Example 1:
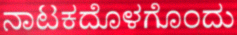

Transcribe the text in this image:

ನಾಟಕದೊಳಗೊಂದು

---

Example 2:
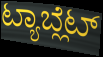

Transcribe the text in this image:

ಟ್ಯಾಬ್ಲೆಟ್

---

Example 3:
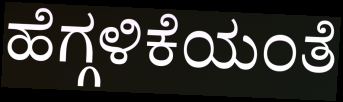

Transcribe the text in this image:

ಹೆಗ್ಗಳಿಕೆಯಂತೆ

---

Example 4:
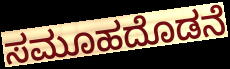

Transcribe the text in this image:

ಸಮೂಹದೊಡನೆ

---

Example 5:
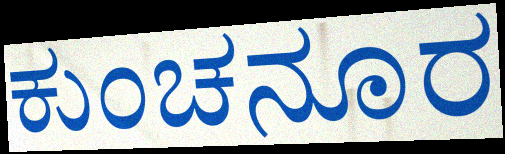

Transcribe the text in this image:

ಕುಂಚನೂರ